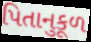
પિતાનુકૂળ